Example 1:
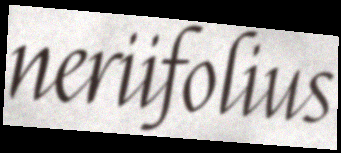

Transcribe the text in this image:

neriifolius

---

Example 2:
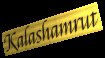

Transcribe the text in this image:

Kalashamrut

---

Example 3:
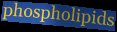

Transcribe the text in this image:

phospholipids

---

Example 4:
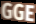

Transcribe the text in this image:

GGE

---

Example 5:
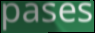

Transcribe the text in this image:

pases